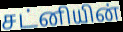
சட்னியின்